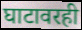
घाटावरही